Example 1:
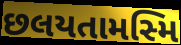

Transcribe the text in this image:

છલયતામસ્મિ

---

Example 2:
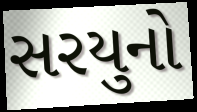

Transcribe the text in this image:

સરયુનો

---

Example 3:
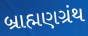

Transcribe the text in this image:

બ્રાહ્મણગ્રંથ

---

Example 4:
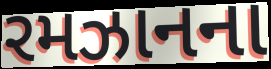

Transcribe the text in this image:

રમઝાનના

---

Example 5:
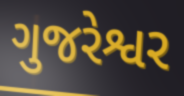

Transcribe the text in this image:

ગુજરેશ્વર